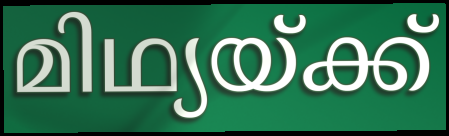
മിഥ്യയ്ക്ക്